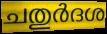
ചതുർദശ